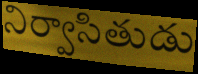
నిర్వాసితుడు